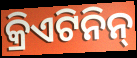
କ୍ରିଏଟିନିନ୍